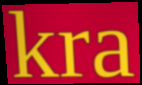
kra